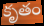
కృతం